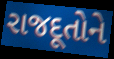
રાજદૂતોને